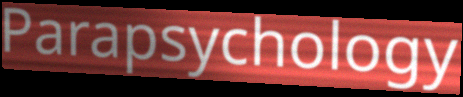
Parapsychology